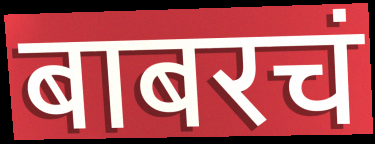
बाबरचं